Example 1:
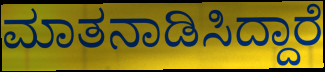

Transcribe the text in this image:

ಮಾತನಾಡಿಸಿದ್ದಾರೆ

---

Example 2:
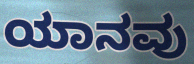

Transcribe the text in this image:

ಯಾನವು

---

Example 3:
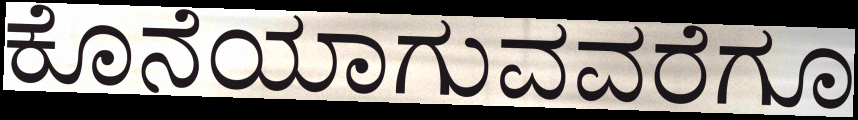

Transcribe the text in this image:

ಕೊನೆಯಾಗುವವರೆಗೂ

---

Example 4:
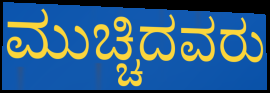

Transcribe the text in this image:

ಮುಚ್ಚಿದವರು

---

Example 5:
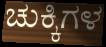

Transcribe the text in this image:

ಚುಕ್ಕಿಗಳ